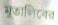
মুতালিবের